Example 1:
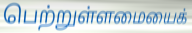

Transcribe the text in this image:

பெற்றுள்ளமையைக்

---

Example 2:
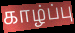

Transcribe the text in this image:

காழ்ப்பு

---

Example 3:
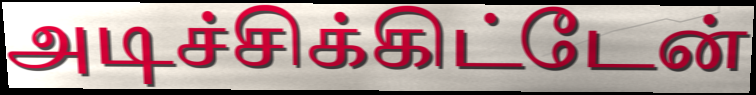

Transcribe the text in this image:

அடிச்சிக்கிட்டேன்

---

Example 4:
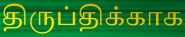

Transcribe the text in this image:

திருப்திக்காக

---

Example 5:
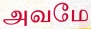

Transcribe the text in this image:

அவமே